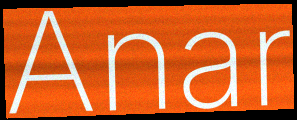
Anar